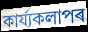
কাৰ্য্যকলাপৰ